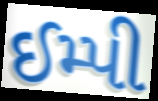
ઈમ્પી